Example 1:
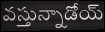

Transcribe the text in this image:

వస్తున్నాడోయ్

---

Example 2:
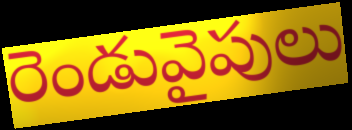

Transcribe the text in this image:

రెండువైపులు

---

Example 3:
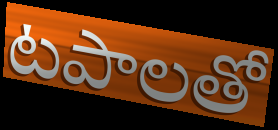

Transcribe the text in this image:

టపాలతో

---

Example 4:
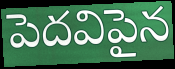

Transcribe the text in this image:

పెదవిపైన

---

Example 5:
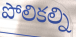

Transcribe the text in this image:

పోలికల్ని